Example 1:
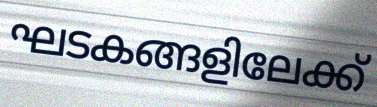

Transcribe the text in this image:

ഘടകങ്ങളിലേക്ക്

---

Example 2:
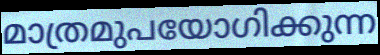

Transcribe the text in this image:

മാത്രമുപയോഗിക്കുന്ന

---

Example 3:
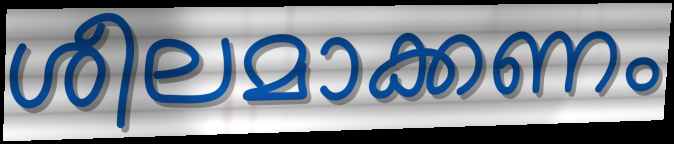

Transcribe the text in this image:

ശീലമാക്കണം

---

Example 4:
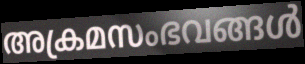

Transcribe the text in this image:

അക്രമസംഭവങ്ങൾ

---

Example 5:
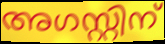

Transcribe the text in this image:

അഗസ്റ്റിന്